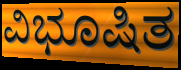
ವಿಭೂಷಿತ